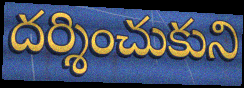
దర్శించుకుని